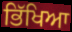
ਭਿੱਖਿਆ